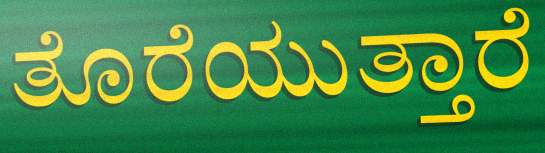
ತೊರೆಯುತ್ತಾರೆ